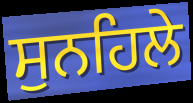
ਸੁਨਹਿਲੇ